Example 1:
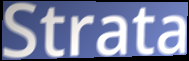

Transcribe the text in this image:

Strata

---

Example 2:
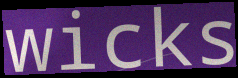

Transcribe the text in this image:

wicks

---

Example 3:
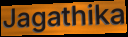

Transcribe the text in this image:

Jagathika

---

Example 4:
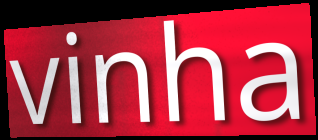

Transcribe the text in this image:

vinha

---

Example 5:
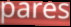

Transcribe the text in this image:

pares